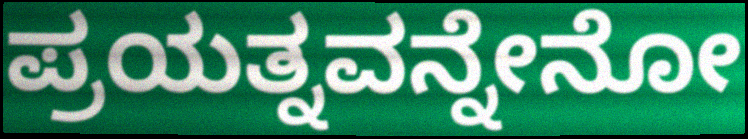
ಪ್ರಯತ್ನವನ್ನೇನೋ